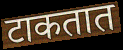
टाकतात